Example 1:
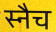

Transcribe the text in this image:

स्नैच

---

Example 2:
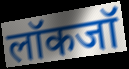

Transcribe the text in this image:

लॉकजॉ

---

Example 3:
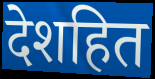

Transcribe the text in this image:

देशहित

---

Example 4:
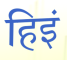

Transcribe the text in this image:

हिइं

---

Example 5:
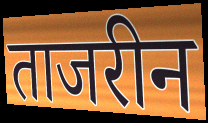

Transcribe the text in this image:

ताजरीन